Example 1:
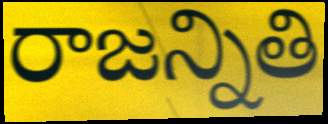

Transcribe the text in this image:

రాజన్నితి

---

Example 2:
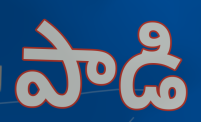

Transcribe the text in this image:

పాడి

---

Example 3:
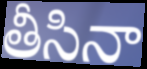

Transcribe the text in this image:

తీసినా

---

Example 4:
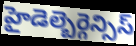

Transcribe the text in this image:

హైడెల్బెర్గెన్సిస్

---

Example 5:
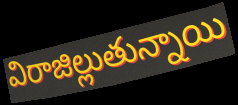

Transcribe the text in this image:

విరాజిల్లుతున్నాయి